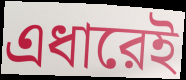
এধারেই